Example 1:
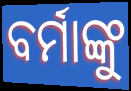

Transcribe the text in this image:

ବର୍ମାଙ୍କୁ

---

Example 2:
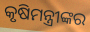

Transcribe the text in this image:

କୃଷିମନ୍ତ୍ରୀଙ୍କର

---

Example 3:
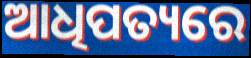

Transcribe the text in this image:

ଆଧିପତ୍ୟରେ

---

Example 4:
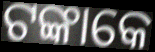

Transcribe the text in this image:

ଟଙ୍କାକେ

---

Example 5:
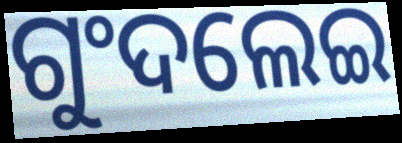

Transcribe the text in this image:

ଗୁଂଦଲେଇ